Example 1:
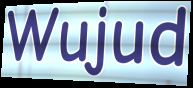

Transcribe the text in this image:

Wujud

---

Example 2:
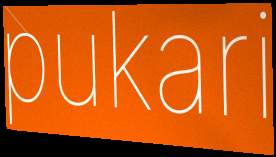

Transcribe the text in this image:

pukari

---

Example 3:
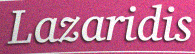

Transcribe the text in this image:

Lazaridis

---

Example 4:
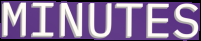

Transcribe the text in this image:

MINUTES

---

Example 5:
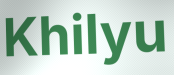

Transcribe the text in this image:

Khilyu